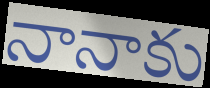
నానాకు